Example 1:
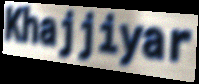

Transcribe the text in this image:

Khajjiyar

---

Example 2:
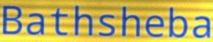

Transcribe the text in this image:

Bathsheba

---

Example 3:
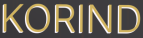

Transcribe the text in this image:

KORIND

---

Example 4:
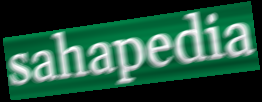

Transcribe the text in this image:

sahapedia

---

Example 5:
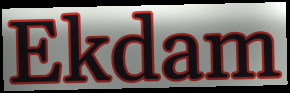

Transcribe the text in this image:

Ekdam